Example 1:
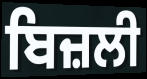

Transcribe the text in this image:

ਬਿਜ਼ਲੀ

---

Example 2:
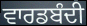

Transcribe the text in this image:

ਵਾਰਡਬੰਦੀ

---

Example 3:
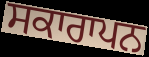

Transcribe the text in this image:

ਸਕਾਰਾਪਨ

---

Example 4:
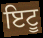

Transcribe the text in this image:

ਇਟੂ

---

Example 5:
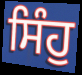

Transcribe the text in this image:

ਸਿੰਹੁ